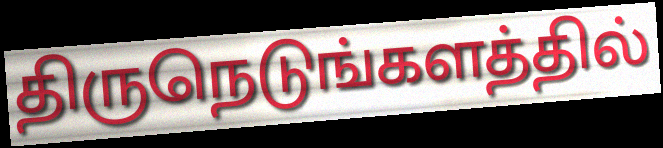
திருநெடுங்களத்தில்